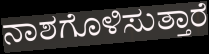
ನಾಶಗೊಳಿಸುತ್ತಾರೆ